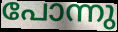
പോന്നു